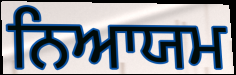
ਨਿਆਯਮ